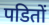
पडितों